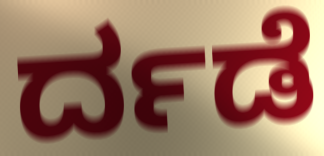
ರ್ದಡೆ